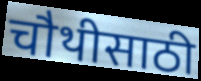
चौथीसाठी